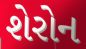
શેરોન